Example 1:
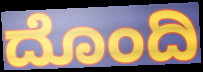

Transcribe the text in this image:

ದೊಂದಿ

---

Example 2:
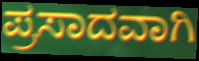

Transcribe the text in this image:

ಪ್ರಸಾದವಾಗಿ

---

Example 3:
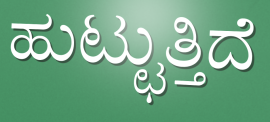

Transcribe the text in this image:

ಹುಟ್ಟುತ್ತಿದೆ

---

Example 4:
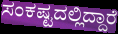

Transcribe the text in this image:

ಸಂಕಷ್ಟದಲ್ಲಿದ್ದಾರೆ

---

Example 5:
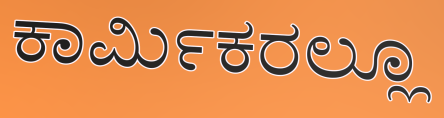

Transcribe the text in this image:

ಕಾರ್ಮಿಕರಲ್ಲೂ